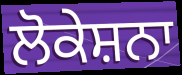
ਲੋਕੇਸ਼ਨਾ